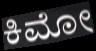
ಕಿಮೋ